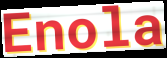
Enola